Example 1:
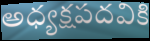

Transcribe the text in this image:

అధ్యక్షపదవికి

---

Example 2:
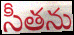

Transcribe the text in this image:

సీతను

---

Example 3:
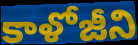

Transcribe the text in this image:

కాళోజీని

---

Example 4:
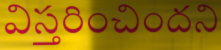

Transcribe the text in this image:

విస్తరించిందని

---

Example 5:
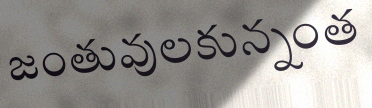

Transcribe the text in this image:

జంతువులకున్నంత